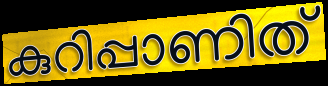
കുറിപ്പാണിത്